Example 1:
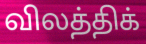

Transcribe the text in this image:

விலத்திக்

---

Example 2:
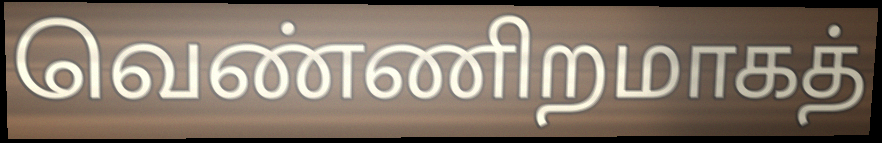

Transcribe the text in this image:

வெண்ணிறமாகத்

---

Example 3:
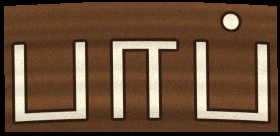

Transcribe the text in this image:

பாப்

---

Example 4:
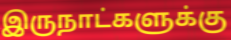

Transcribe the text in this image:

இருநாட்களுக்கு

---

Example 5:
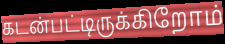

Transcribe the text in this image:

கடன்பட்டிருக்கிறோம்